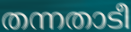
തന്നതാടീ